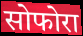
सोफोरा